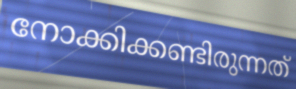
നോക്കിക്കണ്ടിരുന്നത്